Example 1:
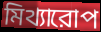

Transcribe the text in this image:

মিথ্যারোপ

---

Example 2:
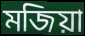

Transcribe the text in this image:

মজিয়া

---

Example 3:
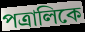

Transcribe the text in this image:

পত্রালিকে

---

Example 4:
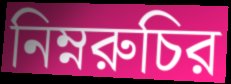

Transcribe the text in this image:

নিম্নরুচির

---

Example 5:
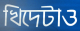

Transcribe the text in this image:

খিদেটাও